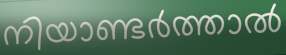
നിയാണ്ടർത്താൽ